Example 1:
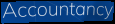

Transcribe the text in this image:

Accountancy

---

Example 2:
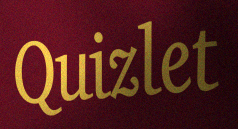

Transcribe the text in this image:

Quizlet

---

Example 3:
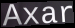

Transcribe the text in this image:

Axar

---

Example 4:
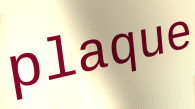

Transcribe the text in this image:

plaque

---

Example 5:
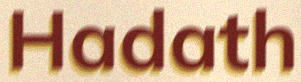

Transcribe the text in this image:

Hadath